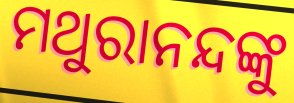
ମଥୁରାନନ୍ଦଙ୍କୁ